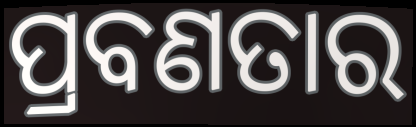
ପ୍ରବଣତାର